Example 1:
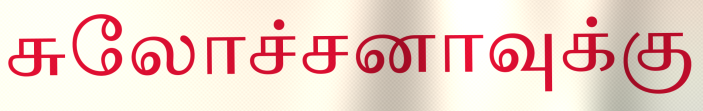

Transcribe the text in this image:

சுலோச்சனாவுக்கு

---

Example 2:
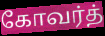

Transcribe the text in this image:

கோவர்த்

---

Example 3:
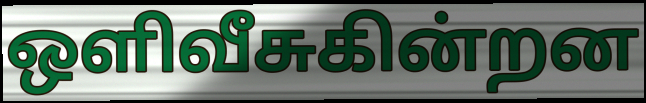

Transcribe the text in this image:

ஒளிவீசுகின்றன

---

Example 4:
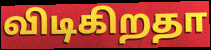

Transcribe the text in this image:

விடிகிறதா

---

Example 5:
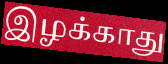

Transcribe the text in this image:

இழக்காது